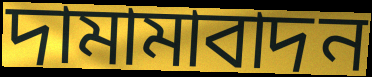
দামামাবাদন